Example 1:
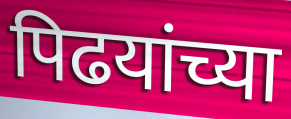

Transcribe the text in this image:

पिढयांच्या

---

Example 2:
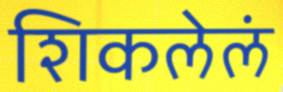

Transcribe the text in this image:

शिकलेलं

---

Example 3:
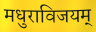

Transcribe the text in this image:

मधुराविजयम्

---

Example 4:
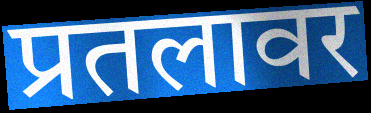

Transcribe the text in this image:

प्रतलावर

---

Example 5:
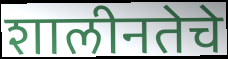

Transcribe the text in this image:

शालीनतेचे